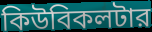
কিউবিকলটার